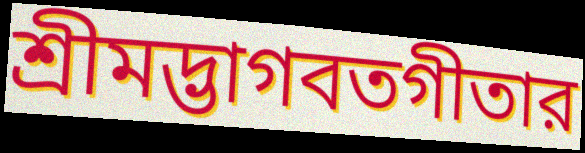
শ্রীমদ্ভাগবতগীতার